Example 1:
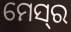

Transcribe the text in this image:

ମେସ୍‍ର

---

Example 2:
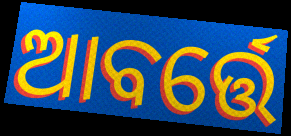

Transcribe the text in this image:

ଆବର୍ତ୍ତେ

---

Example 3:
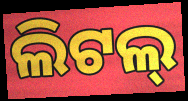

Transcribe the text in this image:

ଲିଟଲ୍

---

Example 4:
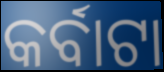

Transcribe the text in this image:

କର୍ବାଟା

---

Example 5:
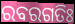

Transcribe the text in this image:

ରବରଗତିଃ